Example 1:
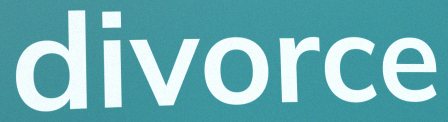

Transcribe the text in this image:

divorce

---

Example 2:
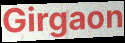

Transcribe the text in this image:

Girgaon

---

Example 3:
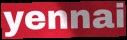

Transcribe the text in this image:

yennai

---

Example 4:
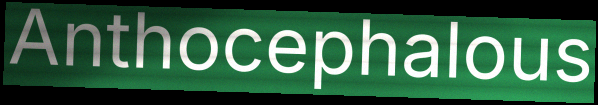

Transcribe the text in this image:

Anthocephalous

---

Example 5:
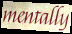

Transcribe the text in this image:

mentally